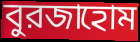
বুরজাহোম